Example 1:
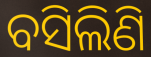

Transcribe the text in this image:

ବସିଲିଣି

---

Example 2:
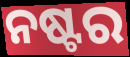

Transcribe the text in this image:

ନଷ୍ଟର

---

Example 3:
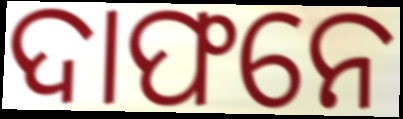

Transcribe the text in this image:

ଦାଫନେ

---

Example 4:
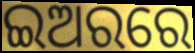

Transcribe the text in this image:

ଇଅରରେ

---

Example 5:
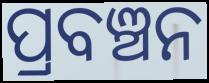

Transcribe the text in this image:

ପ୍ରବଞ୍ଚନ